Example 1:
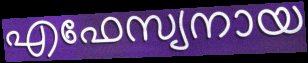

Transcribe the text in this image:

എഫേസ്യനായ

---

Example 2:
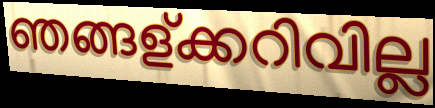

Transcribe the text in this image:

ഞങ്ങള്ക്കറിവില്ല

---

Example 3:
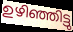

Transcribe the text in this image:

ഉഴിഞ്ഞിട്ടു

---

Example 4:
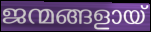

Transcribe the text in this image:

ജന്മങ്ങളായ്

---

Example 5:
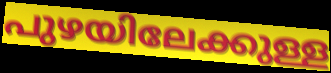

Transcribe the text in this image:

പുഴയിലേക്കുള്ള